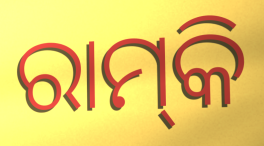
ରାମ୍‌କି